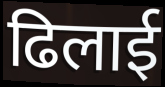
ढिलाई